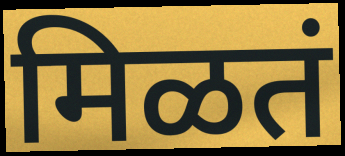
मिळतं